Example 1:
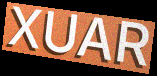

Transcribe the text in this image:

XUAR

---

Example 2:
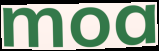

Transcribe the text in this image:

moa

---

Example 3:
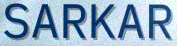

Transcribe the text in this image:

SARKAR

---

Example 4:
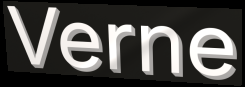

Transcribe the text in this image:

Verne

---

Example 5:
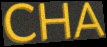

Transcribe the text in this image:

CHA